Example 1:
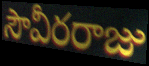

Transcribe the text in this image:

సౌవీరరాజు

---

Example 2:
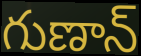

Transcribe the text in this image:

గుణాన్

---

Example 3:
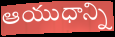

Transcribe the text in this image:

ఆయుధాన్ని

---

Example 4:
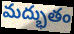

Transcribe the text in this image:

మద్భుతం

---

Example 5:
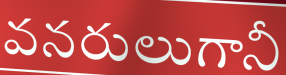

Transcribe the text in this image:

వనరులుగానీ